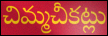
చిమ్మచీకట్లు